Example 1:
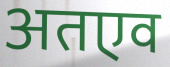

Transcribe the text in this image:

अतएव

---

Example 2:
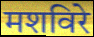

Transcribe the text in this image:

मशविरे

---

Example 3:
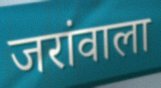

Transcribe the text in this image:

जरांवाला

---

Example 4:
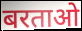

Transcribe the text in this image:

बरताओ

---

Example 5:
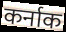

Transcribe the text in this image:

कर्नाक